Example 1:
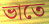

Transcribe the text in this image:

ভাতে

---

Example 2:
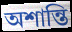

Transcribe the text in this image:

অশান্তি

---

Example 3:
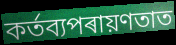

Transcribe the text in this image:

কৰ্তব্যপৰায়ণতাত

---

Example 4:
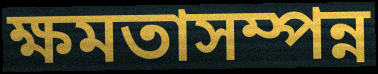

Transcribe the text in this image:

ক্ষমতাসম্পন্ন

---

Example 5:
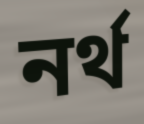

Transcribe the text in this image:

নৰ্থ